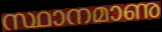
സ്ഥാനമാണു